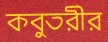
কবুতরীর